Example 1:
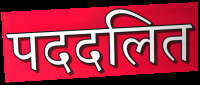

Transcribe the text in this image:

पददलित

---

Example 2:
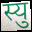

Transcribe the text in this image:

स्यु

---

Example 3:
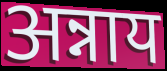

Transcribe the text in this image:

अन्नाय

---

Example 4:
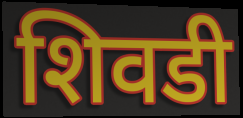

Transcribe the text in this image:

शिवडी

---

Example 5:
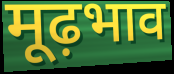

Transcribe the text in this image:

मूढ़भाव